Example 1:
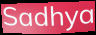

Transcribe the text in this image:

Sadhya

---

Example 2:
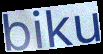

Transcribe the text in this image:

biku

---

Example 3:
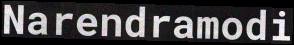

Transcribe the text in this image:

Narendramodi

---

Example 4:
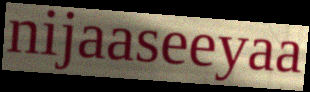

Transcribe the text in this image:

nijaaseeyaa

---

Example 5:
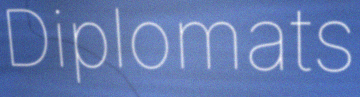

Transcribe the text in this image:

Diplomats